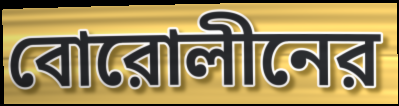
বোরোলীনের